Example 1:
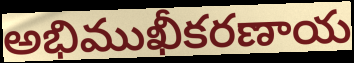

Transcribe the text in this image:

అభిముఖీకరణాయ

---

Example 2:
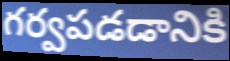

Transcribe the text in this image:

గర్వపడడానికి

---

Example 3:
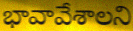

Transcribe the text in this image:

భావావేశాలని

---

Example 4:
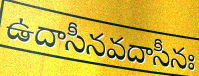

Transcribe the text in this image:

ఉదాసీనవదాసీనః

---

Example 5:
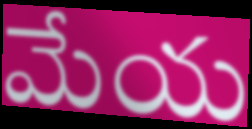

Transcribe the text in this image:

మేయ